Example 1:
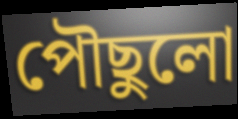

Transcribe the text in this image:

পৌছুলো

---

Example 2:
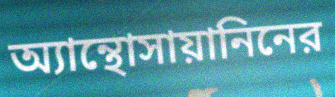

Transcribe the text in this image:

অ্যান্থোসায়ানিনের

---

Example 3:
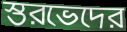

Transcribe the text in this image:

স্তরভেদের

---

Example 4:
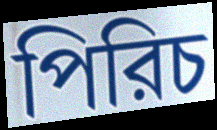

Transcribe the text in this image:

পিরিচ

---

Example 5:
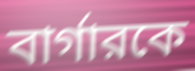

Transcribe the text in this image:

বার্গারকে